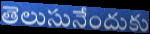
తెలుసునేందుకు